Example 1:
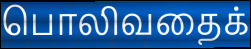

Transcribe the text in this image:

பொலிவதைக்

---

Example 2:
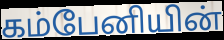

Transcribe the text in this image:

கம்பேனியின்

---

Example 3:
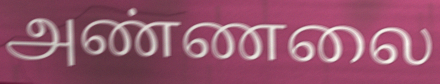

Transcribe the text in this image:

அண்ணலை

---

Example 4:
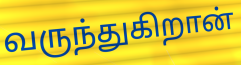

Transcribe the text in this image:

வருந்துகிறான்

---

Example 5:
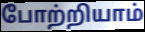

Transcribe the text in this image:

போற்றியாம்